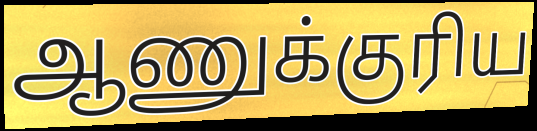
ஆணுக்குரிய